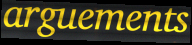
arguements